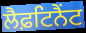
ਲੈਫ਼ਟਿਨੈਂਟ